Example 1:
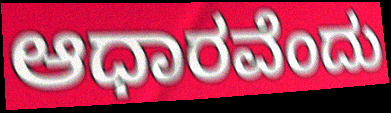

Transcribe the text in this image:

ಆಧಾರವೆಂದು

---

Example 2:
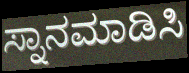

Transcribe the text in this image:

ಸ್ನಾನಮಾಡಿಸಿ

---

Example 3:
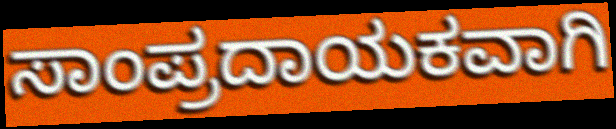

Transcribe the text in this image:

ಸಾಂಪ್ರದಾಯಕವಾಗಿ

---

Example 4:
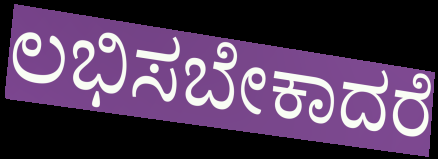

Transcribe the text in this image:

ಲಭಿಸಬೇಕಾದರೆ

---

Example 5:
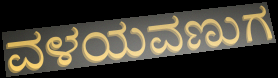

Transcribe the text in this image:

ವಳಯವಣುಗ